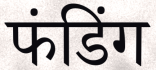
फंडिंग